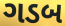
ગડબ